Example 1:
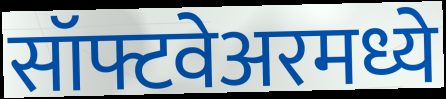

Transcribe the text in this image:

सॉफ्टवेअरमध्ये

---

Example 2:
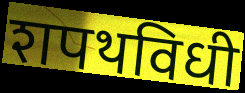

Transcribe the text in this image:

शपथविधी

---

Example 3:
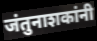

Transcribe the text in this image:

जंतुनाशकांनी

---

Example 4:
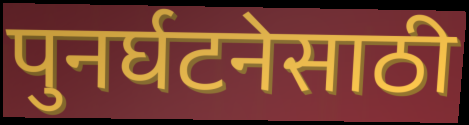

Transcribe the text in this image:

पुनर्घटनेसाठी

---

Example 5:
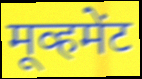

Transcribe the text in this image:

मूव्हमेंट